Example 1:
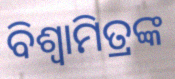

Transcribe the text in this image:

ବିଶ୍ବାମିତ୍ରଙ୍କ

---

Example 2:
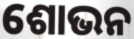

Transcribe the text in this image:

ଶୋଭନ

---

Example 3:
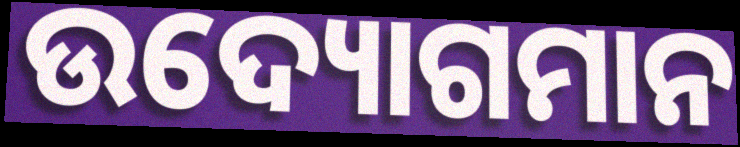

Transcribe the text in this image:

ଉଦ୍ୟୋଗମାନ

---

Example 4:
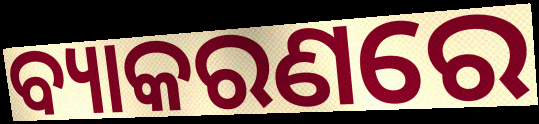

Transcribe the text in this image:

ବ୍ୟାକରଣରେ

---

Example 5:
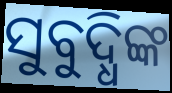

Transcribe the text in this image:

ସୁବୁଦ୍ଧିଙ୍କ